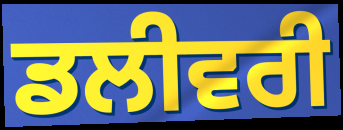
ਡਲੀਵਰੀ